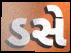
ડસે